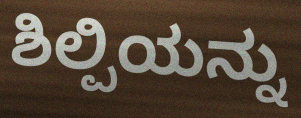
ಶಿಲ್ಪಿಯನ್ನು